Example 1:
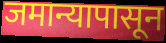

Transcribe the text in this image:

जमान्यापासून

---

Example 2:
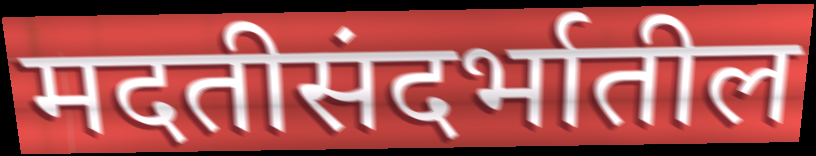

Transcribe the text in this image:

मदतीसंदर्भातील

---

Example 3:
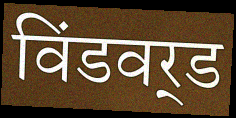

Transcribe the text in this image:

विंडवर्ड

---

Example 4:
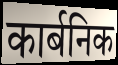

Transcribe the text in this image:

कार्बनिक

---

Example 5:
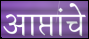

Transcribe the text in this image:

आप्तांचे